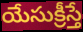
యేసుక్రీస్తే